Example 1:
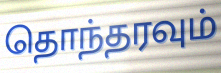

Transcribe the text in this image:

தொந்தரவும்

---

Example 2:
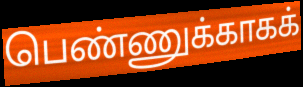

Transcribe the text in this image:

பெண்ணுக்காகக்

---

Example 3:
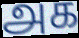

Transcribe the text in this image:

அக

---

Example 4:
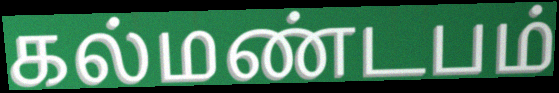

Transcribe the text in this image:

கல்மண்டபம்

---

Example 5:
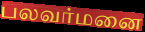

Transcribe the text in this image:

பலவர்மனை